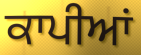
ਕਾਪੀਆਂ